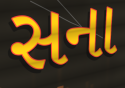
સના